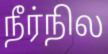
நீர்நில